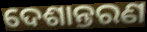
ଦେଶାନ୍ତରଣ